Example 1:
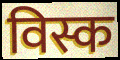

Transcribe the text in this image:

विस्क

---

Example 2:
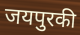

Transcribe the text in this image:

जयपुरकी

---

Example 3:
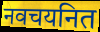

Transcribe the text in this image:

नवचयनित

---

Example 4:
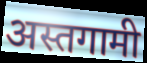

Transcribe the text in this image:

अस्तगामी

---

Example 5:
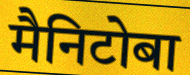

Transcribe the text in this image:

मैनिटोबा